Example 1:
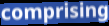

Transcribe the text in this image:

comprising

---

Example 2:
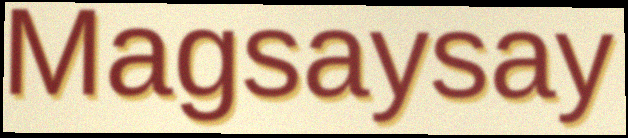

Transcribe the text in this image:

Magsaysay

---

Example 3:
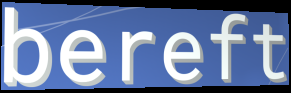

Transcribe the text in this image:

bereft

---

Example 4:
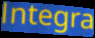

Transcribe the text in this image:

Integra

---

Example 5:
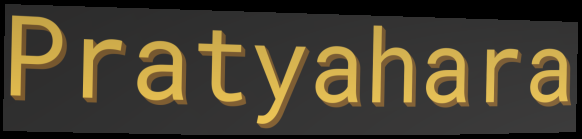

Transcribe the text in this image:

Pratyahara